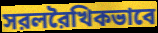
সরলরৈখিকভাবে